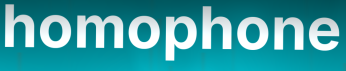
homophone